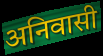
अनिवासी